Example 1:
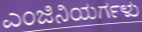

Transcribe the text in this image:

ಎಂಜಿನಿಯರ್ಗಳು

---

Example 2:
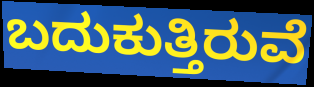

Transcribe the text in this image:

ಬದುಕುತ್ತಿರುವೆ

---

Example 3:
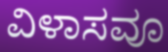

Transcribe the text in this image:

ವಿಳಾಸವೂ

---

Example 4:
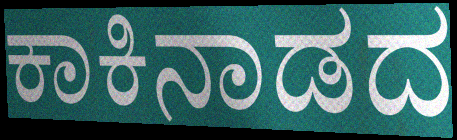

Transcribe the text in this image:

ಕಾಕಿನಾಡದ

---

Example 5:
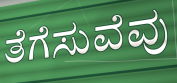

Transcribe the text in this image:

ತೆಗೆಸುವೆವು